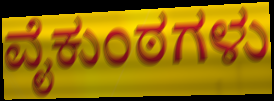
ವೈಕುಂಠಗಳು